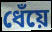
ধেঁয়ে